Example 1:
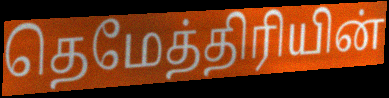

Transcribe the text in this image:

தெமேத்திரியின்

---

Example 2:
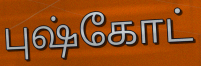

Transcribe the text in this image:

புஷ்கோட்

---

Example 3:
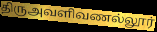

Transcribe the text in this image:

திருஅவளிவணல்லூர்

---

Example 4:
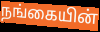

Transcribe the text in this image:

நங்கையின்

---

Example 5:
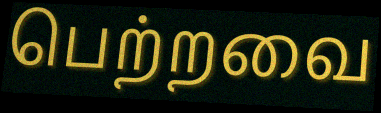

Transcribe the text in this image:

பெற்றவை